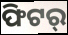
ଫିଟର୍